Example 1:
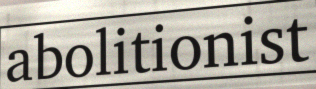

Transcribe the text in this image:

abolitionist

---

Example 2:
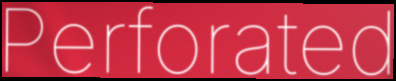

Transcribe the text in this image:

Perforated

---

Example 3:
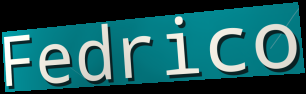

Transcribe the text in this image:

Fedrico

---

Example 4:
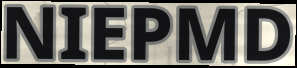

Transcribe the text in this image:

NIEPMD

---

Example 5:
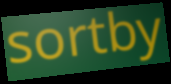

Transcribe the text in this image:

sortby